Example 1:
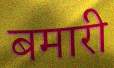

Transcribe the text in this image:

बमारी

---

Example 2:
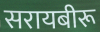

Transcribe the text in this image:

सरायबीरू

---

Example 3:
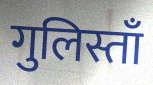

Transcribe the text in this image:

गुलिस्ताँ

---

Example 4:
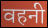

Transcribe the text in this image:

वहनी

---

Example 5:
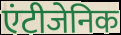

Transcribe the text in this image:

एंटीजेनिक